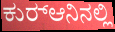
ಕುರ್‍ಆನಿನಲ್ಲಿ